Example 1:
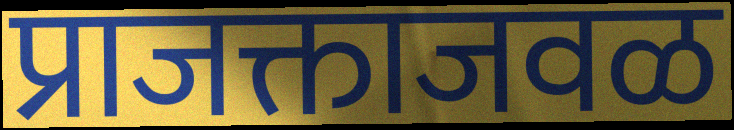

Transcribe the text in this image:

प्राजक्ताजवळ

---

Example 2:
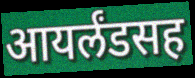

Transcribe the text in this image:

आयर्लंडसह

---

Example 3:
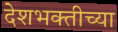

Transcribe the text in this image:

देशभक्तीच्या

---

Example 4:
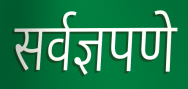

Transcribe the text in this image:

सर्वज्ञपणे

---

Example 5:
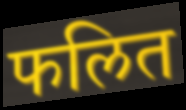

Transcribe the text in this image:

फलित